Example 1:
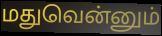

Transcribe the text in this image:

மதுவென்னும்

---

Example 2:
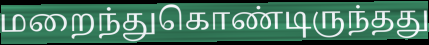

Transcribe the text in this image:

மறைந்துகொண்டிருந்தது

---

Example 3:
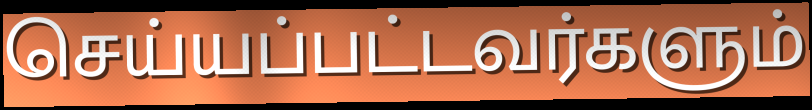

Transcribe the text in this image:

செய்யப்பட்டவர்களும்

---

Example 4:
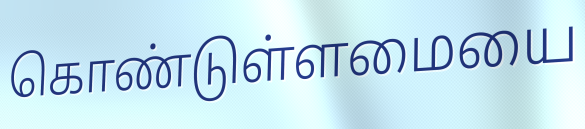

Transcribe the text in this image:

கொண்டுள்ளமையை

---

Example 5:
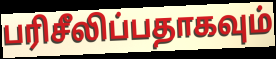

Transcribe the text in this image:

பரிசீலிப்பதாகவும்